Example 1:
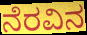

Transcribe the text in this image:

ನೆರವಿನ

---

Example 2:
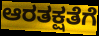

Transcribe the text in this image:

ಆರತಕ್ಷತೆಗೆ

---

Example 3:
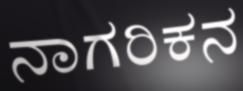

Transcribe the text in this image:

ನಾಗರಿಕನ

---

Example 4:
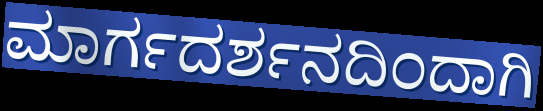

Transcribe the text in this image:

ಮಾರ್ಗದರ್ಶನದಿಂದಾಗಿ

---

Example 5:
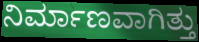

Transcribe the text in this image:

ನಿರ್ಮಾಣವಾಗಿತ್ತು